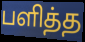
பளித்த